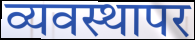
व्यवस्थापर